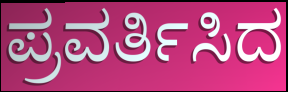
ಪ್ರವರ್ತಿಸಿದ